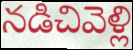
నడిచివెళ్లి